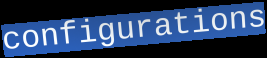
configurations